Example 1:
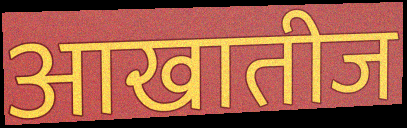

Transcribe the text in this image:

आखातीज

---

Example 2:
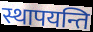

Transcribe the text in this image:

स्थापयन्ति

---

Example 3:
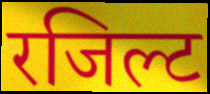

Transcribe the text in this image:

रजिल्ट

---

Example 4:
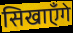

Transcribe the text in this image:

सिखाएँगे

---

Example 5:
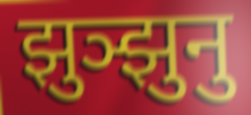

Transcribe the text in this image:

झुञ्झुनु